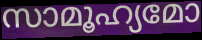
സാമൂഹ്യമോ